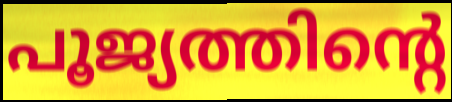
പൂജ്യത്തിന്റെ